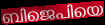
ബിജെപിയെ